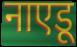
नाएडू